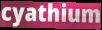
cyathium